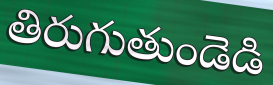
తిరుగుతుండెడి